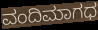
ವಂದಿಮಾಗಧ